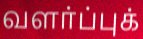
வளர்ப்புக்